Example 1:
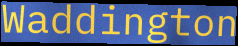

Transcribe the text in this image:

Waddington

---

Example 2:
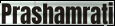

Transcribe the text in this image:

Prashamrati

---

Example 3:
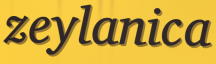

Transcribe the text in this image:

zeylanica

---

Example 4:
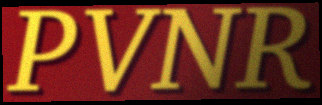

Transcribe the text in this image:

PVNR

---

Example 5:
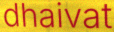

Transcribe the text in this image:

dhaivat